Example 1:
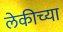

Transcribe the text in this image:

लेकीच्या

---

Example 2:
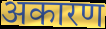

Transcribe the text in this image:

अकारण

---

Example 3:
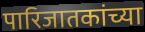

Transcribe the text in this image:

पारिजातकांच्या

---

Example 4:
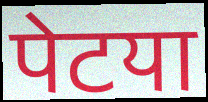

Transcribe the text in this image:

पेटया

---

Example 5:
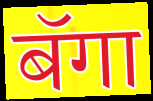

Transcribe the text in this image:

बॅगा